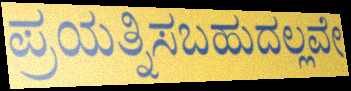
ಪ್ರಯತ್ನಿಸಬಹುದಲ್ಲವೇ